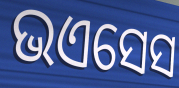
ଭଏସେସ